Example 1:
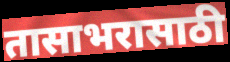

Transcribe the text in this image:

तासाभरासाठी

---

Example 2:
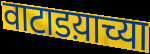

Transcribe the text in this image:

वाटाडय़ाच्या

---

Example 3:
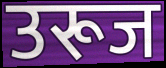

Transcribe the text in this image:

उरूज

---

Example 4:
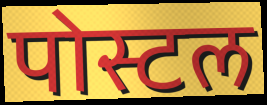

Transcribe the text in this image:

पोस्टल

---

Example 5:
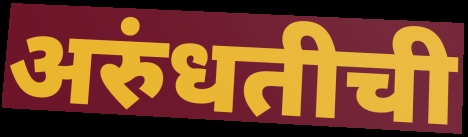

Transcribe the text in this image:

अरुंधतीची